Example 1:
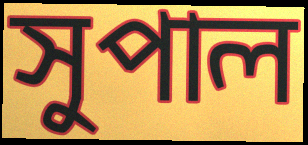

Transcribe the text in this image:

সুপাল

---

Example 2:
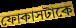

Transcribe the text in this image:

ফোকাসটাকে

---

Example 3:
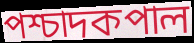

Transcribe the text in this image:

পশ্চাদকপাল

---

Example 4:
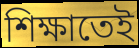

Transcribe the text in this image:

শিক্ষাতেই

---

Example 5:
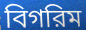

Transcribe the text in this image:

বিগরিম